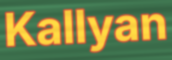
Kallyan